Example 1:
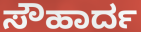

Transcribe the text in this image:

ಸೌಹಾರ್ದ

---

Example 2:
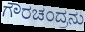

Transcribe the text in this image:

ಗೌರಚಂದ್ರನು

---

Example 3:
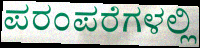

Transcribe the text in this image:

ಪರಂಪರೆಗಳಲ್ಲಿ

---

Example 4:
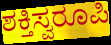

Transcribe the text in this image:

ಶಕ್ತಿಸ್ವರೂಪಿ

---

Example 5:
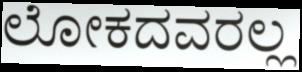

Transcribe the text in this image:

ಲೋಕದವರಲ್ಲ